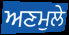
ਅਣਮੁਲੇ